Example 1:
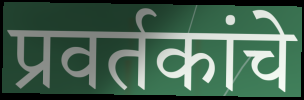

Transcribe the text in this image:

प्रवर्तकांचे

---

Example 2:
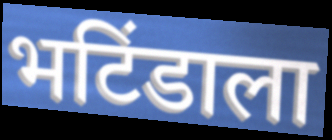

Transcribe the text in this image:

भटिंडाला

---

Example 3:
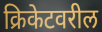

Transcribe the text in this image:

क्रिकेटवरील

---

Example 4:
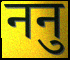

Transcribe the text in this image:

ननु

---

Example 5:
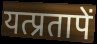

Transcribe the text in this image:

यत्प्रतापें